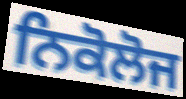
ਨਿਕੋਲੋਜ